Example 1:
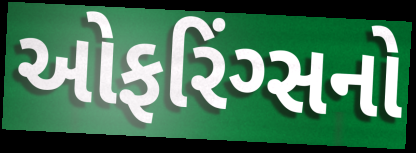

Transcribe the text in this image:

ઓફરિંગ્સનો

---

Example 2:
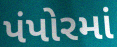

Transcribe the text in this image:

પંપોરમાં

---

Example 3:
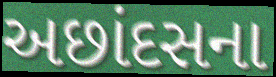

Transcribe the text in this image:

અછાંદસના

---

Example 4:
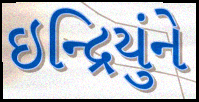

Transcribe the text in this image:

ઇન્દ્રિયુંને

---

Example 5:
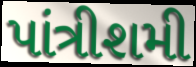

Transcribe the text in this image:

પાંત્રીશમી